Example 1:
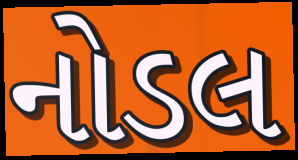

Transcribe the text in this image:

નોડલ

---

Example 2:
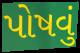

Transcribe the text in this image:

પોષવું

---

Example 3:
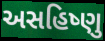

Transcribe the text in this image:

અસહિષ્ણુ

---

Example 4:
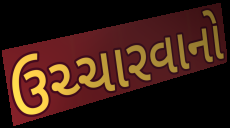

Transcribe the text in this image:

ઉચ્ચારવાનો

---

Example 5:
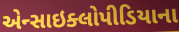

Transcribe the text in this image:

એન્સાઇક્લોપીડિયાના